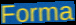
Forma